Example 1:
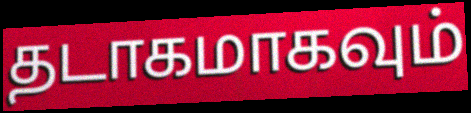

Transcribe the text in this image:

தடாகமாகவும்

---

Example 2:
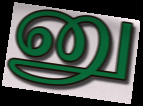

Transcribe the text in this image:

னு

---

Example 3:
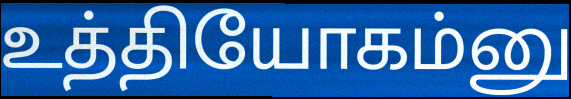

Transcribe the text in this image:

உத்தியோகம்னு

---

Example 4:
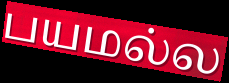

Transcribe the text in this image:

பயமல்ல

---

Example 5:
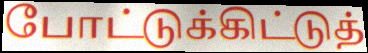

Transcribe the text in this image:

போட்டுக்கிட்டுத்